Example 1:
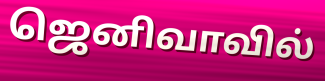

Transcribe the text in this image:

ஜெனிவாவில்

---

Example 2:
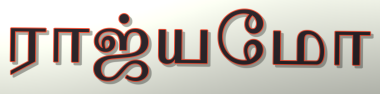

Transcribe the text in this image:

ராஜ்யமோ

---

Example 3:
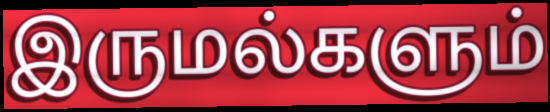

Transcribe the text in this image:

இருமல்களும்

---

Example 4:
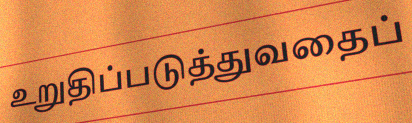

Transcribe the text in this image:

உறுதிப்படுத்துவதைப்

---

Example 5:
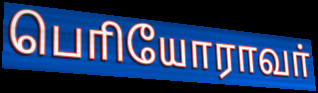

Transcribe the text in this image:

பெரியோராவர்